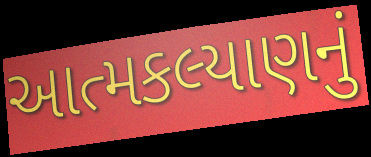
આત્મકલ્યાણનું